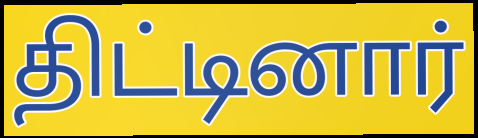
திட்டினார்